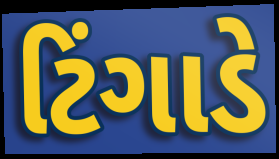
ટિંગાડે